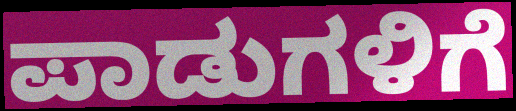
ಪಾಡುಗಳಿಗೆ